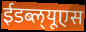
ईडब्ल्यूएस